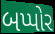
બપ્પોર